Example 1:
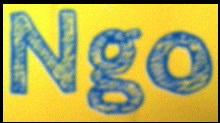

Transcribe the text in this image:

Ngo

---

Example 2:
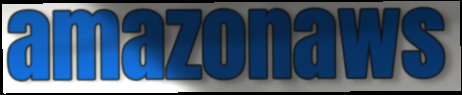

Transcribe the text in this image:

amazonaws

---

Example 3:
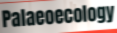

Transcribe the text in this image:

Palaeoecology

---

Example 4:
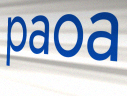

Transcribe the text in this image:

paoa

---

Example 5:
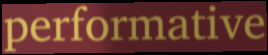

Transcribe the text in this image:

performative